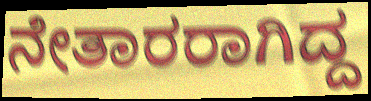
ನೇತಾರರಾಗಿದ್ದ